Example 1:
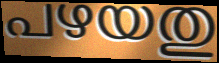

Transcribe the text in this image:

പഴയതു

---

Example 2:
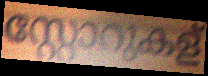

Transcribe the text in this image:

സ്റ്റോറുകള്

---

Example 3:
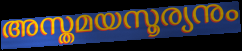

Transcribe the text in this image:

അസ്തമയസൂര്യനും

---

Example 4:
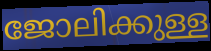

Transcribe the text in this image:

ജോലിക്കുള്ള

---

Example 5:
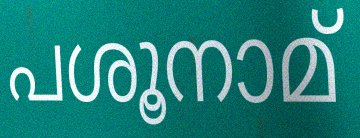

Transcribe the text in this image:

പശൂനാമ്